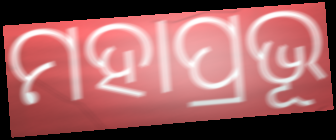
ମହାପ୍ରଭୂ